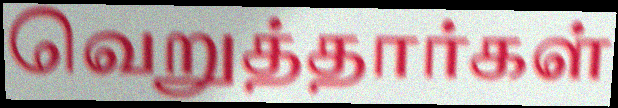
வெறுத்தார்கள்